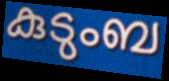
കുടുംബ